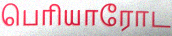
பெரியாரோட